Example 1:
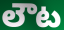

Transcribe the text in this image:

లౌట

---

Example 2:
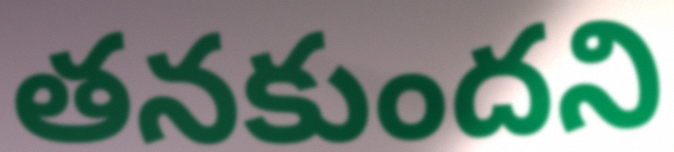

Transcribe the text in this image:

తనకుందని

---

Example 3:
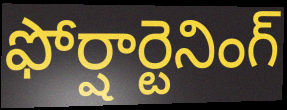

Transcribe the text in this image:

ఫోర్షార్టెనింగ్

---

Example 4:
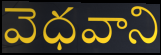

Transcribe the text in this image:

వెధవాని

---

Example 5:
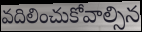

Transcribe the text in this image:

వదిలించుకోవాల్సిన